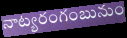
నాట్యరంగంబునుం